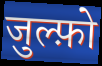
जुल्फ़ो